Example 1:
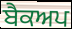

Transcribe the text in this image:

ਬੈਕਅਪ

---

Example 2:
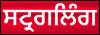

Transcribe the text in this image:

ਸਟ੍ਰਗਲਿੰਗ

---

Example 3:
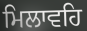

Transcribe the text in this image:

ਮਿਲਾਵਹਿ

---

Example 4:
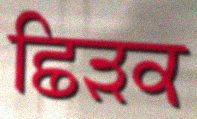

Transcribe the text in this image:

ਛਿੜਕ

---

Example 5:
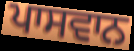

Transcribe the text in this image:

ਪਾਸਵਾਨ